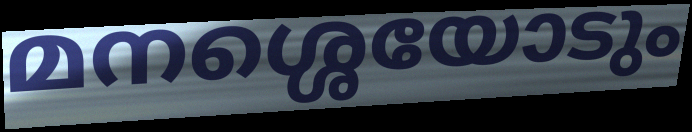
മനശ്ശെയോടും